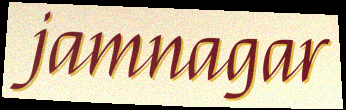
jamnagar